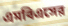
এমবিএসের